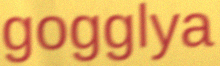
gogglya